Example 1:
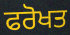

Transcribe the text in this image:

ਫਰੋਖਤ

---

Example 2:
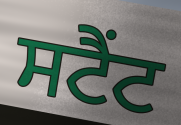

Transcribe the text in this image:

ਸਟੈਂਟ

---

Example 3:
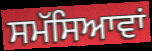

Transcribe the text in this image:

ਸਮੱਸਿਆਵਾਂ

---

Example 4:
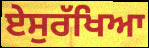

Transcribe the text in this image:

ਏਸੁਰੱਖਿਆ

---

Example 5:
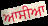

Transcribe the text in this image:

ਆਸੀਆ